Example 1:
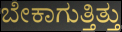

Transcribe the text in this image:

ಬೇಕಾಗುತ್ತಿತ್ತು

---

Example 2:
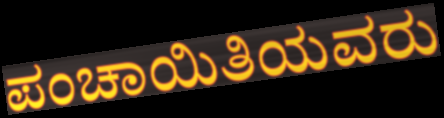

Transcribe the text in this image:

ಪಂಚಾಯಿತಿಯವರು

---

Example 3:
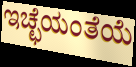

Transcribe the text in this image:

ಇಚ್ಛೆಯಂತೆಯೆ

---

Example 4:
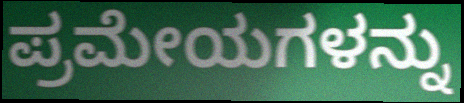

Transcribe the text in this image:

ಪ್ರಮೇಯಗಳನ್ನು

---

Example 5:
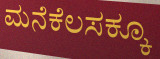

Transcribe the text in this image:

ಮನೆಕೆಲಸಕ್ಕೂ